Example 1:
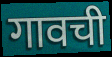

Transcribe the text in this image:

गावची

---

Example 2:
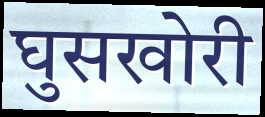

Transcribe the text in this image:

घुसखोरी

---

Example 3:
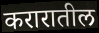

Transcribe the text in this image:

करारातील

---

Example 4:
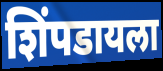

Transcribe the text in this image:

शिंपडायला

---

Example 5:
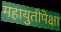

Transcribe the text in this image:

महायुतीपेक्षा